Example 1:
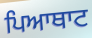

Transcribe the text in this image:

ਪਿਆਥਾਟ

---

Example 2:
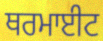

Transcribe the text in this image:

ਥਰਮਾਈਟ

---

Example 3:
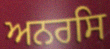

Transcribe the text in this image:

ਅਨਰਸਿ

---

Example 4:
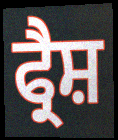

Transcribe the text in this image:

ਫ੍ਰੈਸ਼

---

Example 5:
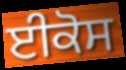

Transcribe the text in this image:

ਈਕੋਸ